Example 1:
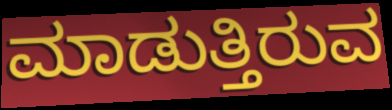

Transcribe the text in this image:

ಮಾಡುತ್ತಿರುವ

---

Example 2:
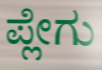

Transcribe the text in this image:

ಪ್ಲೇಗು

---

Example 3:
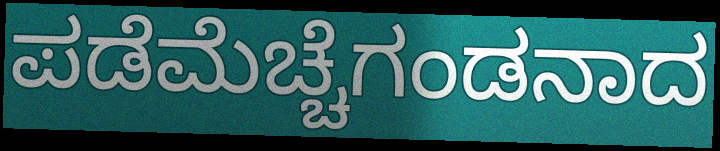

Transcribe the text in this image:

ಪಡೆಮೆಚ್ಚೆಗಂಡನಾದ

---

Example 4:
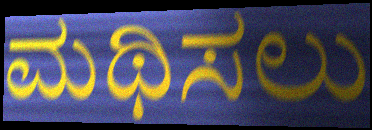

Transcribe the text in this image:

ಮಥಿಸಲು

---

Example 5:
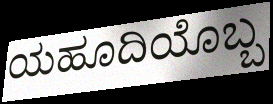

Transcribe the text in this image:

ಯಹೂದಿಯೊಬ್ಬ